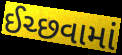
ઈચ્છવામાં